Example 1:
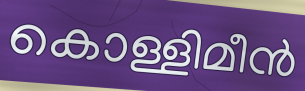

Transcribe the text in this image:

കൊള്ളിമീൻ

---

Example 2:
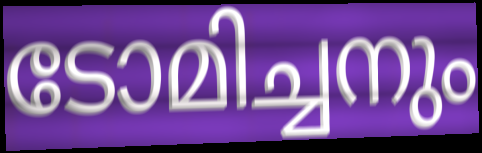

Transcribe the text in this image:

ടോമിച്ചനും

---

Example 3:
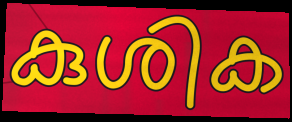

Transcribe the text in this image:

കുശിക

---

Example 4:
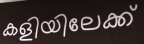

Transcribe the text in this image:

കളിയിലേക്ക്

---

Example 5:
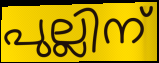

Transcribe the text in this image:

പുല്ലിന്